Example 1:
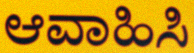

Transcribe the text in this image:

ಆವಾಹಿಸಿ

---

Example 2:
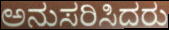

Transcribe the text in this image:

ಅನುಸರಿಸಿದರು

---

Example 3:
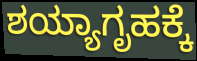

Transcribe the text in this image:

ಶಯ್ಯಾಗೃಹಕ್ಕೆ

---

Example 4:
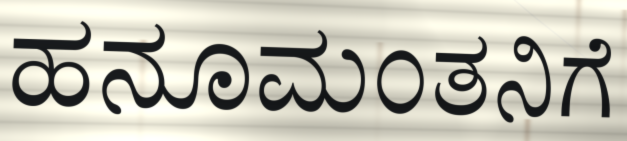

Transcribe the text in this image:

ಹನೂಮಂತನಿಗೆ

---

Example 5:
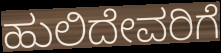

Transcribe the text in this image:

ಹುಲಿದೇವರಿಗೆ